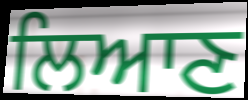
ਲਿਆਣ